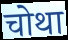
चोथा